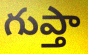
గుప్తా